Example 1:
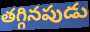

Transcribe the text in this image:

తగ్గినపుడు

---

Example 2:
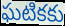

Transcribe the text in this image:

ఘటికకు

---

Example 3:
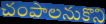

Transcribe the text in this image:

చంపాలనుకొని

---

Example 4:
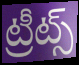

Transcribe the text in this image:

ట్రీట్స్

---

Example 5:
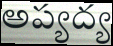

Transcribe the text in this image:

అప్యద్య